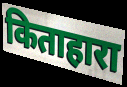
किताहारा